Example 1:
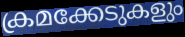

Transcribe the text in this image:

ക്രമക്കേടുകളും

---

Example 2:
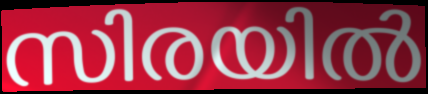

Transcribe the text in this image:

സിരയിൽ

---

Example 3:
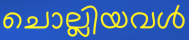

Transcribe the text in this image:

ചൊല്ലിയവൾ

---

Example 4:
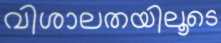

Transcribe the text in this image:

വിശാലതയിലൂടെ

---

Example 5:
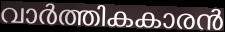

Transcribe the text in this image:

വാർത്തികകാരൻ